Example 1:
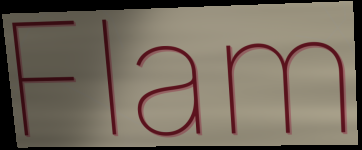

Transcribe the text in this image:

Flam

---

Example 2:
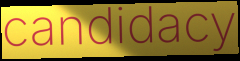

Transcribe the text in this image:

candidacy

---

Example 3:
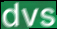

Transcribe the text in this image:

dvs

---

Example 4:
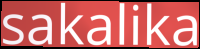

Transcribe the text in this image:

sakalika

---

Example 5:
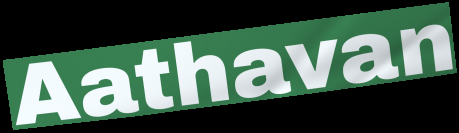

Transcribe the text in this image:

Aathavan